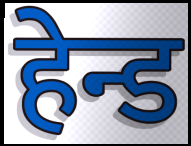
हेन्ड